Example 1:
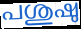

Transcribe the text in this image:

പശുഷു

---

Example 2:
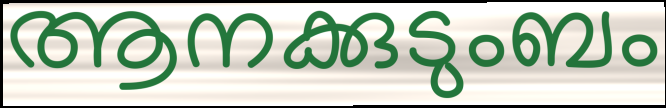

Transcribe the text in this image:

ആനക്കുടുംബം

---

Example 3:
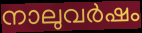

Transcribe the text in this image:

നാലുവർഷം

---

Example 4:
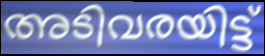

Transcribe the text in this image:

അടിവരയിട്ട്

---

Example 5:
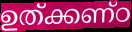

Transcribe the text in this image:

ഉത്ക്കണ്ഠ